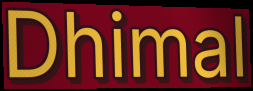
Dhimal